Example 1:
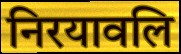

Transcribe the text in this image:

निरयावलि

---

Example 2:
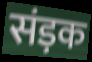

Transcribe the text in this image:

संड़क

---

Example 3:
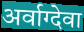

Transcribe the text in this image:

अर्वाग्देवा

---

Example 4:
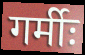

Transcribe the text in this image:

गर्मीः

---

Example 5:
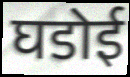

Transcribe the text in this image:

घडोई